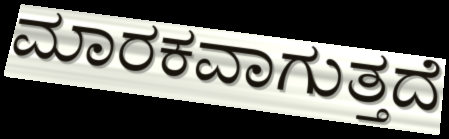
ಮಾರಕವಾಗುತ್ತದೆ